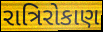
રાત્રિરોકાણ